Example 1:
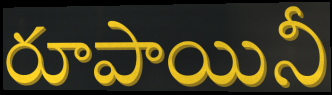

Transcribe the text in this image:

రూపాయినీ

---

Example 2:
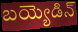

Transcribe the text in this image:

బయ్యెడిన్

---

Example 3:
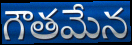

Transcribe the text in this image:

గౌతమేన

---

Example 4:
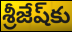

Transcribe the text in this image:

శ్రీజేష్‌కు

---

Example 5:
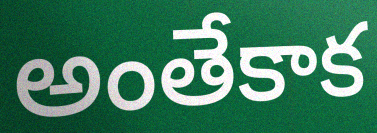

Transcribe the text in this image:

అంతేకాక